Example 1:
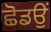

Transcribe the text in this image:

ਛੋਡਉਂ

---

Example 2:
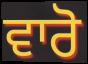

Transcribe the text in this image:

ਵਾਰੋ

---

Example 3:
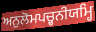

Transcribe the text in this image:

ਅਨੁਲੋਮਪਚ੍ਚਨੀਯਮ੍ਹਿ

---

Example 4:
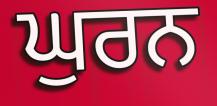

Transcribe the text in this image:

ਘੁਰਨ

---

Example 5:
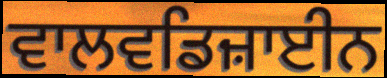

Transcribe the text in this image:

ਵਾਲਵਡਿਜ਼ਾਈਨ